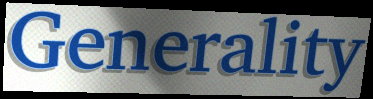
Generality